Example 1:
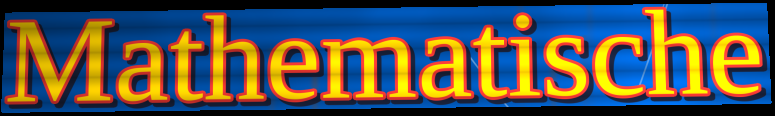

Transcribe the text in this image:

Mathematische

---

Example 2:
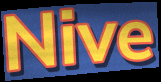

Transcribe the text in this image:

Nive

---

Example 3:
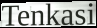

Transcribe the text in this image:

Tenkasi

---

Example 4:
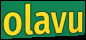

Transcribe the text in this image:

olavu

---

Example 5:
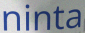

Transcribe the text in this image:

ninta